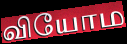
வியோம